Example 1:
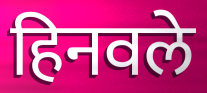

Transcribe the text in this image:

हिनवले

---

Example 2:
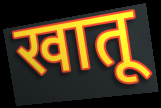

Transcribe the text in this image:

खातू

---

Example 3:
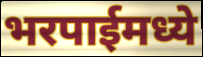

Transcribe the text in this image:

भरपाईमध्ये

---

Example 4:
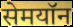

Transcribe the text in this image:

सेमयॉन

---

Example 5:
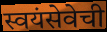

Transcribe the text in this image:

स्वयंसेवेची